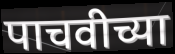
पाचवीच्या